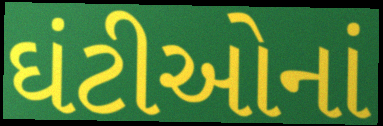
ઘંટીઓનાં